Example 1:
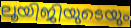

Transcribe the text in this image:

ലൂയിജിയുടെയും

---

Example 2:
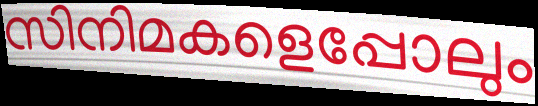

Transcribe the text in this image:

സിനിമകളെപ്പോലും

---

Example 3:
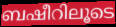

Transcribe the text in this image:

ബഷീറിലൂടെ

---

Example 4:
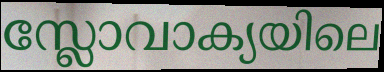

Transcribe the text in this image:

സ്ലോവാക്യയിലെ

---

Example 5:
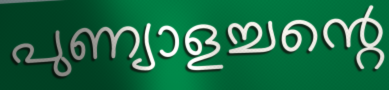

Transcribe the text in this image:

പുണ്യാളച്ചന്റെ